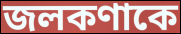
জলকণাকে